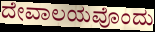
ದೇವಾಲಯವೊಂದು